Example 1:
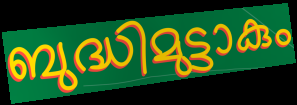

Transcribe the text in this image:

ബുദ്ധിമുട്ടാകും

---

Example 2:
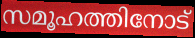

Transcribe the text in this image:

സമൂഹത്തിനോട്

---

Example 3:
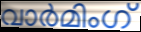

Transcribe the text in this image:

വാർമിംഗ്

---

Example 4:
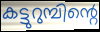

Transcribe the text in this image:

കട്ടുറുമ്പിന്റെ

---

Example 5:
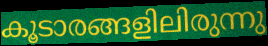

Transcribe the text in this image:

കൂടാരങ്ങളിലിരുന്നു